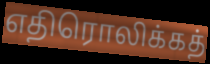
எதிரொலிக்கத்